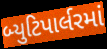
બ્યુટિપાર્લરમાં